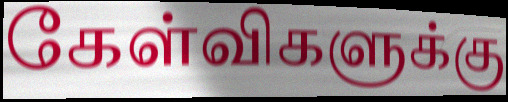
கேள்விகளுக்கு